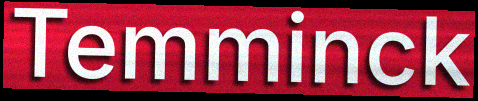
Temminck